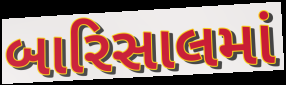
બારિસાલમાં